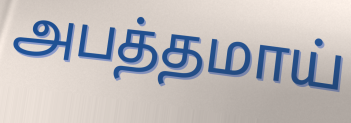
அபத்தமாய்